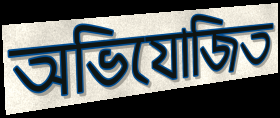
অভিযোজিত